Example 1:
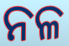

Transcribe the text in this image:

ନଳ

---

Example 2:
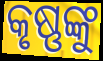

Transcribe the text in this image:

କୃଷ୍ଣଙ୍କୁ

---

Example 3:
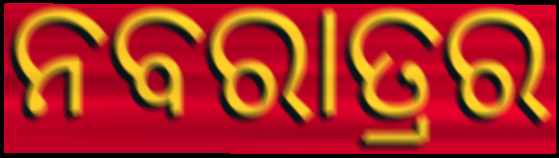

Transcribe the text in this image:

ନବରାତ୍ରର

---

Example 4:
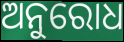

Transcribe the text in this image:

ଅନୁରୋଧ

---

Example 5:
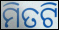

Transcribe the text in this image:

ମିତଟି